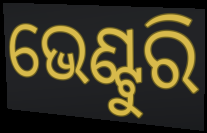
ଭେଣ୍ଟୁରି